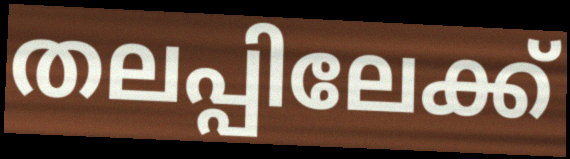
തലപ്പിലേക്ക്